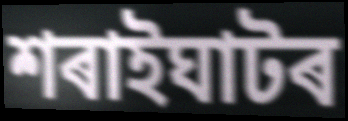
শৰাইঘাটৰ